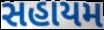
સહાયમ